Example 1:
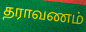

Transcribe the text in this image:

தராவணம்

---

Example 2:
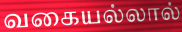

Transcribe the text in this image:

வகையல்லால்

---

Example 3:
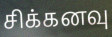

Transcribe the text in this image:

சிக்கனவு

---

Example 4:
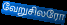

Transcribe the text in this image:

வேறுசிலரோ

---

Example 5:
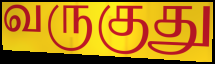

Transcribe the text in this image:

வருகுது